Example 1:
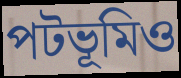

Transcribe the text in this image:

পটভূমিও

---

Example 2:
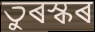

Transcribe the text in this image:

তুৰস্কৰ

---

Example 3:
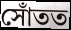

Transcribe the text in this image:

সোঁতত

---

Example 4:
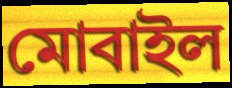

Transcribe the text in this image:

মোবাইল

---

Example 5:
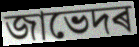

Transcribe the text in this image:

জাভেদৰ